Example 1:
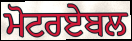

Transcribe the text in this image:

ਮੋਟਰਏਬਲ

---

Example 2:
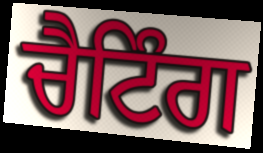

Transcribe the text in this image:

ਚੈਟਿੰਗ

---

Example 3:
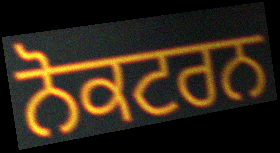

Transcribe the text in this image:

ਨੋਕਟਰਨ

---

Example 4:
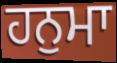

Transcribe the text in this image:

ਹਨੁਮਾ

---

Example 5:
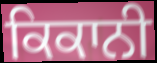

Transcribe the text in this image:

ਕਿਕਾਨੀ